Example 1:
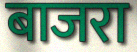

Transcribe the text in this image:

बाजरा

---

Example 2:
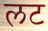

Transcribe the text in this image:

लट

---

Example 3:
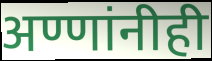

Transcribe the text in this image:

अण्णांनीही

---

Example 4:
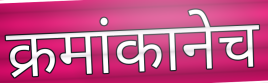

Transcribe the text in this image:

क्रमांकानेच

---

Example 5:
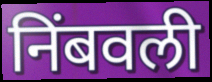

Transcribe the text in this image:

निंबवली